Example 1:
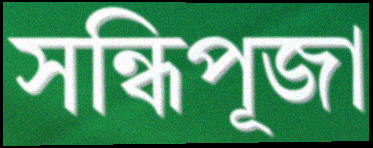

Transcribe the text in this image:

সন্ধিপূজা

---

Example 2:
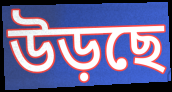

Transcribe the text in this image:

উড়ছে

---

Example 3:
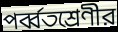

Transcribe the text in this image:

পর্ব্বতশ্রেণীর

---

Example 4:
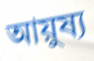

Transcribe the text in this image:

আয়ুষ্য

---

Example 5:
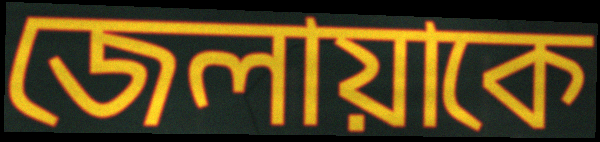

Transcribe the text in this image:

জেলায়াকে